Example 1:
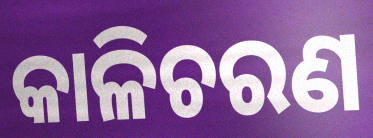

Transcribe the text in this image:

କାଳିଚରଣ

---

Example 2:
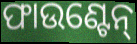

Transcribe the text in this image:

ଫାଉଣ୍ଟେନ୍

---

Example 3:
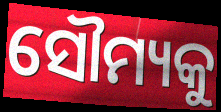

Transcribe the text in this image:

ସୌମ୍ୟକୁ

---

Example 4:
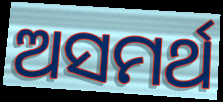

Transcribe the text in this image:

ଅସମର୍ଥ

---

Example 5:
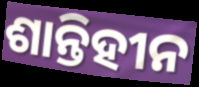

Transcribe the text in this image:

ଶାନ୍ତିହୀନ